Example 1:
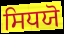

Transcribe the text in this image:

ਸਿਧਯੋ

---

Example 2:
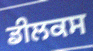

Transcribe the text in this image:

ਡੀਲਕਸ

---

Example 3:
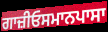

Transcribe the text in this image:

ਗਾਜ਼ੀਓਸਮਾਨਪਾਸਾ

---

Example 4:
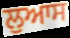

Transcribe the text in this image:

ਲੁਆਸ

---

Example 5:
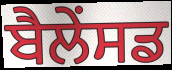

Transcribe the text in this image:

ਬੈਲੇਂਸਡ